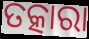
ତତ୍କାରା